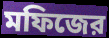
মফিজের